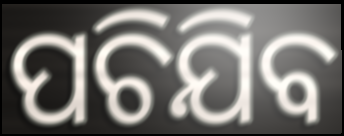
ପଚିଯିବ